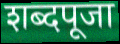
शब्दपूजा